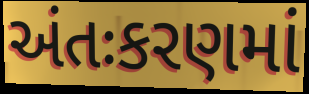
અંતઃકરણમાં